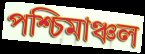
পশ্চিমাঞ্চল